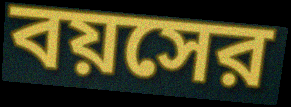
বয়সের